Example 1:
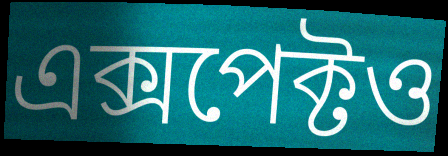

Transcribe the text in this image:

এক্সপেক্টও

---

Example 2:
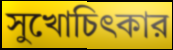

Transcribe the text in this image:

সুখোচিৎকার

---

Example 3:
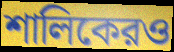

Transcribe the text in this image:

শালিকেরও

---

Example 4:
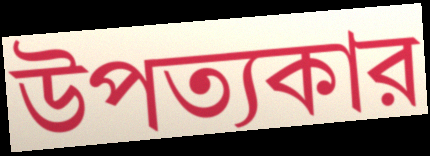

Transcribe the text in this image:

উপত্যকার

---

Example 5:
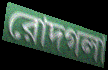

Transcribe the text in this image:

রোদগলা